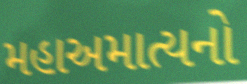
મહાઅમાત્યનો